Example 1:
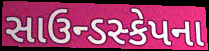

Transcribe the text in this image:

સાઉન્ડસ્કેપના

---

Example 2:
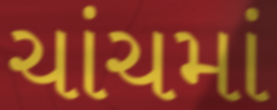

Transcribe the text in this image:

ચાંચમાં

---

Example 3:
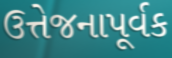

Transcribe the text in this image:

ઉત્તેજનાપૂર્વક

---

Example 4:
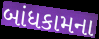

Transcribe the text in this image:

બાંધકામના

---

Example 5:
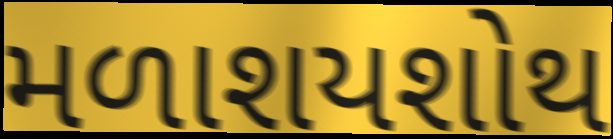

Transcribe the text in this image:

મળાશયશોથ